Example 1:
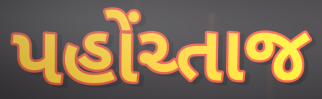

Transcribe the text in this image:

પહોંચ્તાજ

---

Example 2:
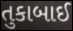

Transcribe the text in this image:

તુકાબાઈ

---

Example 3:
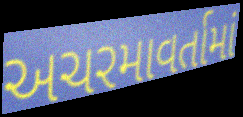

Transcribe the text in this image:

અચરમાવર્તામાં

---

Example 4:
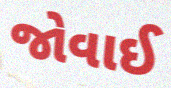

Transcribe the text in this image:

જોવાઈ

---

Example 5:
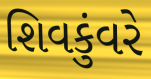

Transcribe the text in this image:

શિવકુંવરે